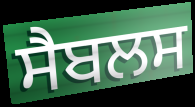
ਸੈਬਲਸ